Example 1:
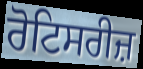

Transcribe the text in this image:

ਰੋਟਿਸਰੀਜ਼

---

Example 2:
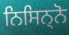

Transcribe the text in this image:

ਨਿਸਿਨ੍ਨੋ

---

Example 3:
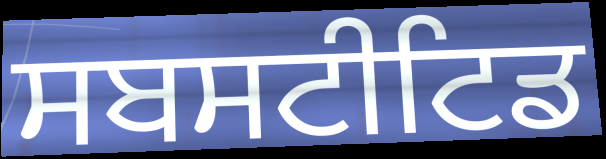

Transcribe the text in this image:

ਸਬਸਟੀਟਿਡ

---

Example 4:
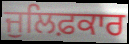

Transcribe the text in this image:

ਜੁਲਿਫ਼ਕਾਰ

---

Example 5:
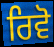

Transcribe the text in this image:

ਰਿਵੋ